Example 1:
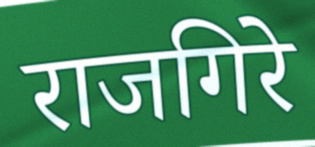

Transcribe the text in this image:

राजगिरे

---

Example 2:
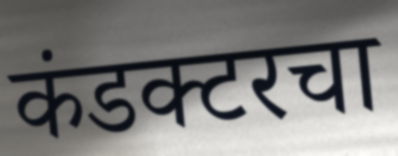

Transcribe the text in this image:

कंडक्टरचा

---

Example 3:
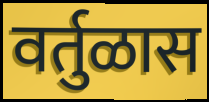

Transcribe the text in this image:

वर्तुळास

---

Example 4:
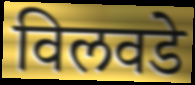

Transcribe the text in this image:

विलवडे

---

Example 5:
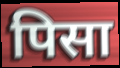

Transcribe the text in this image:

पिसा